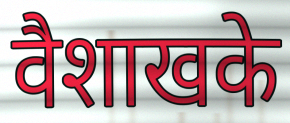
वैशाखके